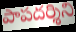
పాపదర్శిని